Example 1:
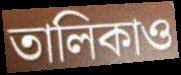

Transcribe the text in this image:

তালিকাও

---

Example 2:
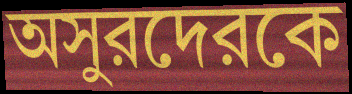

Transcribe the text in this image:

অসুরদেরকে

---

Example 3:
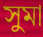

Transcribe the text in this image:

সুমা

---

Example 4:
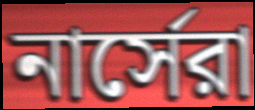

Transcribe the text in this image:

নার্সেরা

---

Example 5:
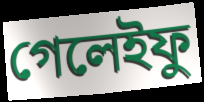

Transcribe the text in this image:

গেলেইফু